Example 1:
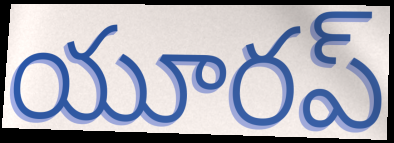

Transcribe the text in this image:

యూరప్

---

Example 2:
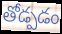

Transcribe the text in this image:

తోడ్పడం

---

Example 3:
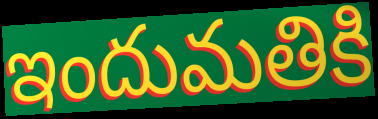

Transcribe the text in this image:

ఇందుమతికి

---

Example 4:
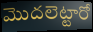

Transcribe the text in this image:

మొదలెట్టారో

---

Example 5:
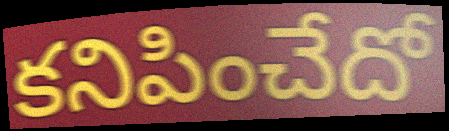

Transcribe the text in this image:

కనిపించేదో